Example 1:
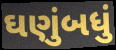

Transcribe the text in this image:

ઘણુંબધું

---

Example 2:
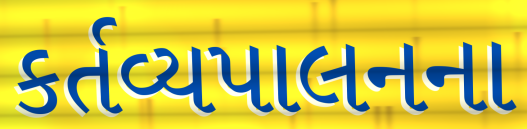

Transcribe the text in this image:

કર્તવ્યપાલનના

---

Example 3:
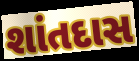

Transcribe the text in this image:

શાંતદાસ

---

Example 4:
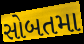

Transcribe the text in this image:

સોબતમા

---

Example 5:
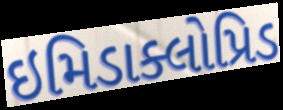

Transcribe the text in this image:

ઇમિડાક્લોપ્રિડ